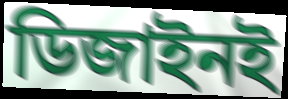
ডিজাইনই